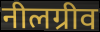
नीलग्रीव